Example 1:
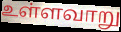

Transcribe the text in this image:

உள்ளவாறு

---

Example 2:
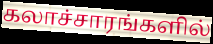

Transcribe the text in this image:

கலாச்சாரங்களில்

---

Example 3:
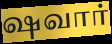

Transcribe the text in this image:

ஷவார்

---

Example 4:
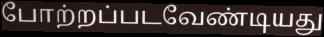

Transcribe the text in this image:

போற்றப்படவேண்டியது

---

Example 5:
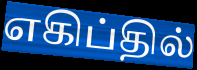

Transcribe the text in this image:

எகிப்தில்